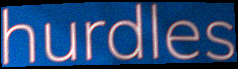
hurdles